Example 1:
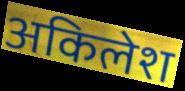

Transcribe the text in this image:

अकिलेश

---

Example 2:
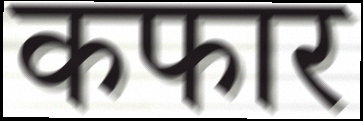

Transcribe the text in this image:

कफार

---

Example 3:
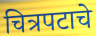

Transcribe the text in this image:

चित्रपटाचे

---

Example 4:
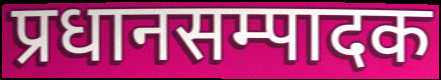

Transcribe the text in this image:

प्रधानसम्पादक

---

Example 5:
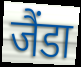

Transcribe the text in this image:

जैंडा